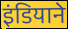
इंडियाने